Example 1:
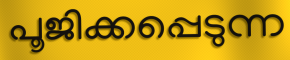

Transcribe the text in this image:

പൂജിക്കപ്പെടുന്ന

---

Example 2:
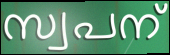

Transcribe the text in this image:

സ്വപന്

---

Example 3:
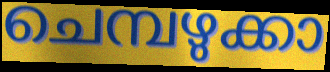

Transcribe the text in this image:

ചെമ്പഴുക്കാ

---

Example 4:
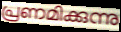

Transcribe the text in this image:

പ്രണമിക്കുന്നു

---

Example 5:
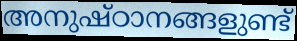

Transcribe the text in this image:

അനുഷ്ഠാനങ്ങളുണ്ട്